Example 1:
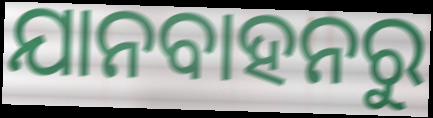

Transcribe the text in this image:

ଯାନବାହନରୁ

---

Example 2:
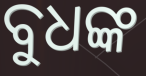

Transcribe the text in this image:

ବୁଧଙ୍କ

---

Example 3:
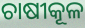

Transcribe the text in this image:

ଚାଷୀକୂଳ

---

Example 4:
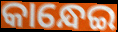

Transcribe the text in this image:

କାନ୍ଧେଇ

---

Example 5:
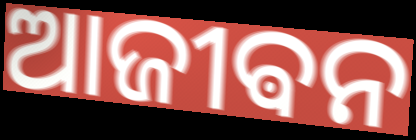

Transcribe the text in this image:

ଆଜୀଵନ